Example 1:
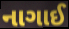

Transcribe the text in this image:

નાગાઈ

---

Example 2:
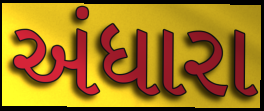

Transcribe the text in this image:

અંધારા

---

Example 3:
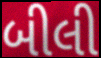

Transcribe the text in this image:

બીલી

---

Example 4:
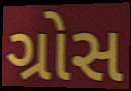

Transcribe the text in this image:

ગ્રોસ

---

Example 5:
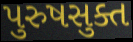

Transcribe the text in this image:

પુરુષસુક્ત